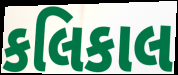
કલિકાલ